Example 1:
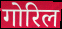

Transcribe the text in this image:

गोरिल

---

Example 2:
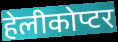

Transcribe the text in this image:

हेलीकोप्टर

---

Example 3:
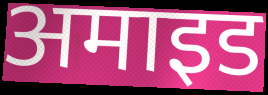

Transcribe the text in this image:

अमाइड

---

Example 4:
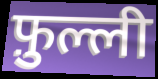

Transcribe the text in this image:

फ़ुल्ली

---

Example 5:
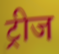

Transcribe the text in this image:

ट्रीज